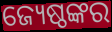
ଜ୍ୟେଷ୍ଠଙ୍କର